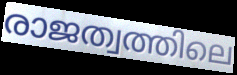
രാജത്വത്തിലെ